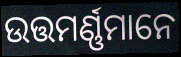
ଉତ୍ତମର୍ଣ୍ଣମାନେ